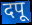
दपू